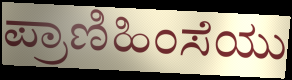
ಪ್ರಾಣಿಹಿಂಸೆಯು